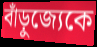
বাঁড়ুজ্যেকে